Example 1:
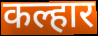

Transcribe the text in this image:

कल्हार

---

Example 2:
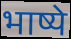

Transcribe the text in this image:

भाष्ये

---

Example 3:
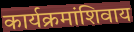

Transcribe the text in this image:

कार्यक्रमांशिवाय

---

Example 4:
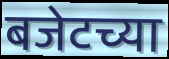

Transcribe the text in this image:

बजेटच्या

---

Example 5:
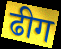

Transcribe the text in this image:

ढीग